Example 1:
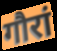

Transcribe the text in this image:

गौरां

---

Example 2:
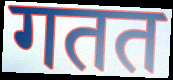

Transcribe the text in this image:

गतत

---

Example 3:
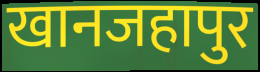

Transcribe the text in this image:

खानजहापुर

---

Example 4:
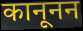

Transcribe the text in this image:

कानूनन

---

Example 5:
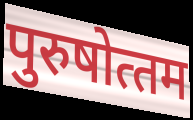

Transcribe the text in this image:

पुरुषोत्‍तम